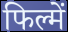
फिल्में